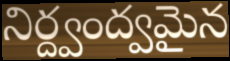
నిర్ద్వంద్వమైన